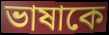
ভাষাকে